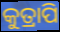
କୁତ୍ରାପି